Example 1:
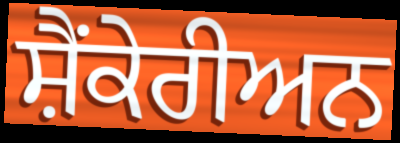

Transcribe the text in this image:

ਸ਼ੈਂਕੇਰੀਅਨ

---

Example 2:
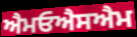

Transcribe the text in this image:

ਐਮਓਐਸਐਮ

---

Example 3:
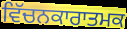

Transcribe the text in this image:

ਵਿੱਚਨਕਾਰਾਤਮਕ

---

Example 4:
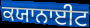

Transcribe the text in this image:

ਕਯਾਨਾਈਟ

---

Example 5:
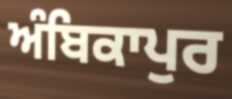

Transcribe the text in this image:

ਅੰਬਿਕਾਪੁਰ